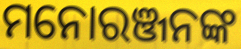
ମନୋରଞ୍ଜନଙ୍କ